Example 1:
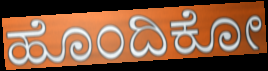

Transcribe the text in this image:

ಹೊಂದಿಕೋ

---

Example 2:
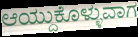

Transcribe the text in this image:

ಆಯ್ದುಕೊಳ್ಳುವಾಗ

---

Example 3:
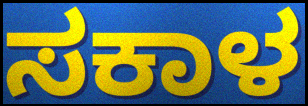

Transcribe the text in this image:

ಸಕಾಳ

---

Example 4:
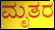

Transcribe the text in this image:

ಮೃತರ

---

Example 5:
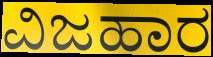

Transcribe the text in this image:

ವಿಜಹಾರ